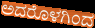
ಅದರೊಳಗಿಂದ